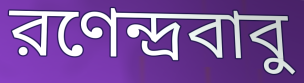
রণেন্দ্রবাবু